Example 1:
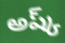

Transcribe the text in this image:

అష్క్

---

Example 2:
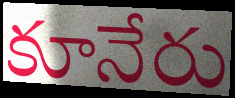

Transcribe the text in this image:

కూనేరు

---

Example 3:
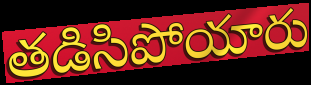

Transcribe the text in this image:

తడిసిపోయారు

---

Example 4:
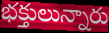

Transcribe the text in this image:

భక్తులున్నారు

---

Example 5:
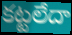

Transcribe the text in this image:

కట్టలేదా